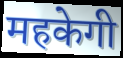
महकेगी